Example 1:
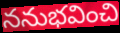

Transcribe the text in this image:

ననుభవించి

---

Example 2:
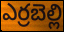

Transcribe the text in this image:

ఎర్రబెల్లి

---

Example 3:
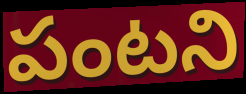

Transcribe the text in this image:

పంటని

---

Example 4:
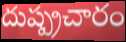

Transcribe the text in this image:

దుష్ప్రచారం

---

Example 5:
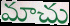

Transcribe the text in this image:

మాచు